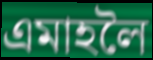
এমাহলৈ